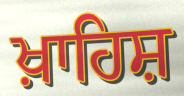
ਖ਼ਾਹਿਸ਼